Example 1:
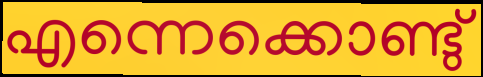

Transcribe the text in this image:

എന്നെക്കൊണ്ടു്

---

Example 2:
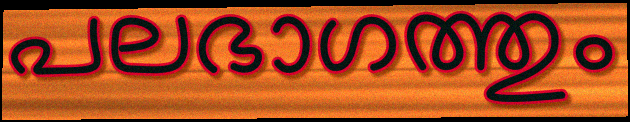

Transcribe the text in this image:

പലഭാഗത്തും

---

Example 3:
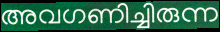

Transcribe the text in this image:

അവഗണിച്ചിരുന്ന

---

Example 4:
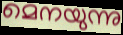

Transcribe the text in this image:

മെനയുന്നു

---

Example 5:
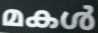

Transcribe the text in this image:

മകൾ